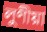
লুণীয়া